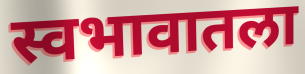
स्वभावातला